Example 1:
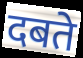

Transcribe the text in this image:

दबते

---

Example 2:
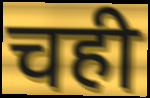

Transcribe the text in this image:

चही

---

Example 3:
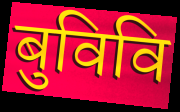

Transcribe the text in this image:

बुविवि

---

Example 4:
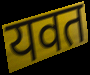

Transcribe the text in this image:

यवत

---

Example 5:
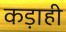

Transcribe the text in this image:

कड़ाही